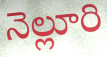
నెల్లూరి